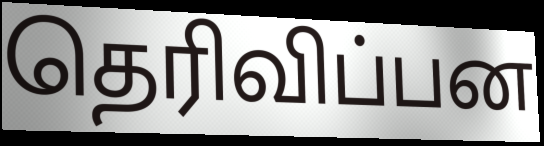
தெரிவிப்பன